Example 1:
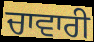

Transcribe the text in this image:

ਚਾਵਾਰੀ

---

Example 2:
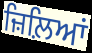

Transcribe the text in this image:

ਜ਼ਿਲ਼ਿਆਂ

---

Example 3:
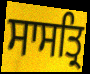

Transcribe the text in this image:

ਸਾਸਤ੍ਰਿ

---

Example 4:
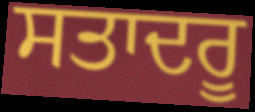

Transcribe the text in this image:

ਸਤਾਦਰੂ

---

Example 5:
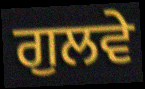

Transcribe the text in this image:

ਗੁਲਵੇ